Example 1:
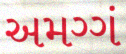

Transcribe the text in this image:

અમગ્ગં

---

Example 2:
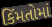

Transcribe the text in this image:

કિંમતોમાં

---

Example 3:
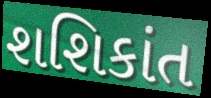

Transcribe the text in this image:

શશિકાંત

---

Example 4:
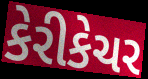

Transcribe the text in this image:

કેરીકેચર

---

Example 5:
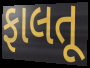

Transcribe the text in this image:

ફાલતૂ